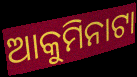
ଆକୁମିନାଟା